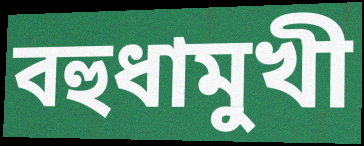
বহুধামুখী